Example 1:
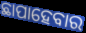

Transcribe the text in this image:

ଛାପାହେବାର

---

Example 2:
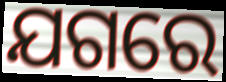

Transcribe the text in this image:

ଯଗରେ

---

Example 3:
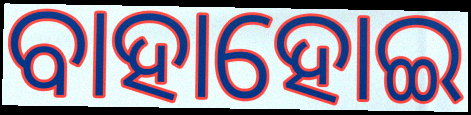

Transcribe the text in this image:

ବାହାହୋଇ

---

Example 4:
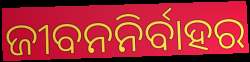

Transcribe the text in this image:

ଜୀବନନିର୍ବାହର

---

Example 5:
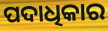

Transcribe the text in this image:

ପଦାଧିକାର